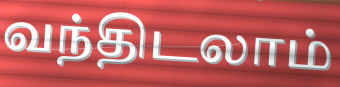
வந்திடலாம்